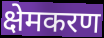
क्षेमकरण